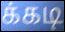
க்கடி